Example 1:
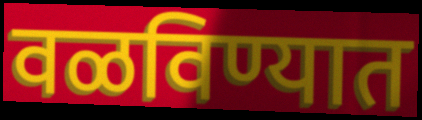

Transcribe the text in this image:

वळविण्यात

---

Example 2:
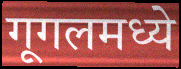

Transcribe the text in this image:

गूगलमध्ये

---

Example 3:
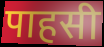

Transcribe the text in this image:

पाहसी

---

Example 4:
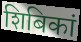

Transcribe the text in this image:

शिबिकां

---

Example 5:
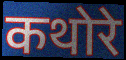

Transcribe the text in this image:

कथोरे